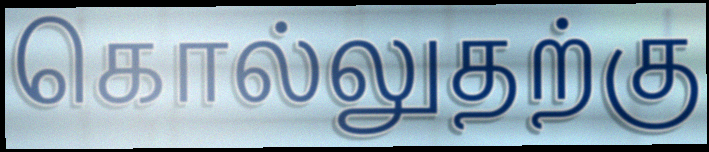
கொல்லுதற்கு